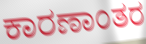
ಕಾರಣಾಂತರ